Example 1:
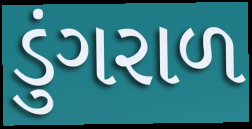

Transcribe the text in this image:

ડુંગરાળ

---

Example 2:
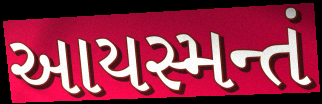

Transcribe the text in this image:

આયસ્મન્તં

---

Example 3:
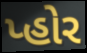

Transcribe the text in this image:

પ્હોર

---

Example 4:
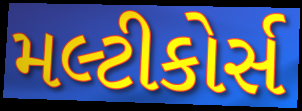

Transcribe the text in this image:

મલ્ટીકોર્સ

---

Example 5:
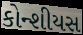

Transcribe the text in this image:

કોન્શીયસ